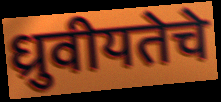
ध्रुवीयतेचे